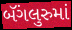
બૅંગલુરુમાં